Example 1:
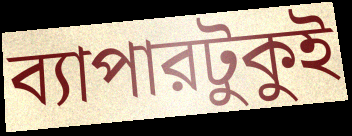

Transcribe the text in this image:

ব্যাপারটুকুই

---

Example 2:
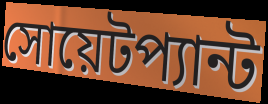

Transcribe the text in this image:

সোয়েটপ্যান্ট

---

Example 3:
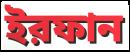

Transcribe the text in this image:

ইরফান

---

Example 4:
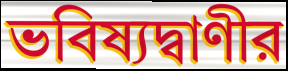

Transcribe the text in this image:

ভবিষ্যদ্বাণীর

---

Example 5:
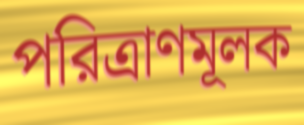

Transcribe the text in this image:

পরিত্রাণমূলক